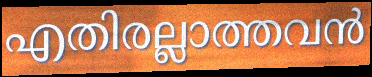
എതിരല്ലാത്തവൻ